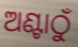
ଅଣ୍ଟାଠୁଁ